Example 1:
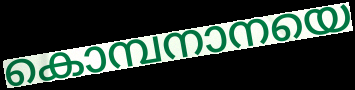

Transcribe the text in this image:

കൊമ്പനാനയെ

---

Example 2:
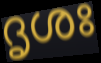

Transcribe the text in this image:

ദൃശഃ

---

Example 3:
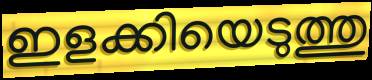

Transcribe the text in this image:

ഇളക്കിയെടുത്തു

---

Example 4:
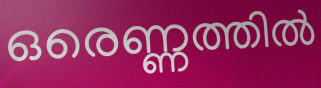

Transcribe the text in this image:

ഒരെണ്ണത്തിൽ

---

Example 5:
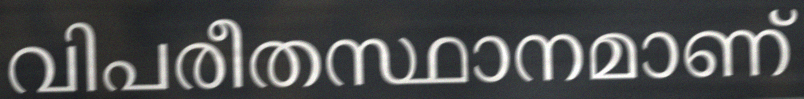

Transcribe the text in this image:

വിപരീതസ്ഥാനമാണ്